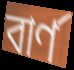
বাৰ্ণ